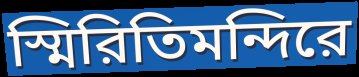
স্মিরিতিমন্দিরে